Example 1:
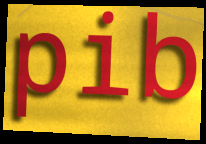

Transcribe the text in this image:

pib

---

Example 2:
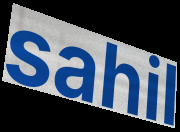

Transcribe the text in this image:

sahil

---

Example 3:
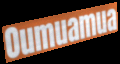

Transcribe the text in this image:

Oumuamua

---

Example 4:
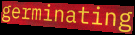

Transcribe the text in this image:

germinating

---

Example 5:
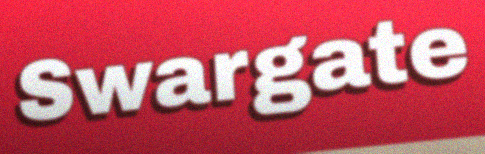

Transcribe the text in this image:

Swargate